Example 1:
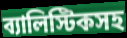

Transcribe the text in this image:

ব্যালিস্টিকসহ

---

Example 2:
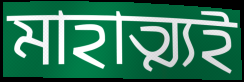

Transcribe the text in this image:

মাহাত্ম্যই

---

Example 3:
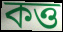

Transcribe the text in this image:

কত্ত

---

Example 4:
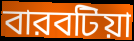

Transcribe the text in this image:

বারবটিয়া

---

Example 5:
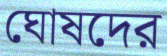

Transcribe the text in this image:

ঘোষদের